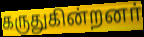
கருதுகின்றனர்